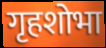
गृहशोभा